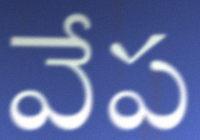
వేప